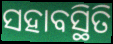
ସହାବସ୍ଥିତି